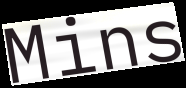
Mins